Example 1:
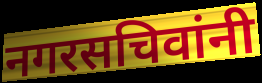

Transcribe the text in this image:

नगरसचिवांनी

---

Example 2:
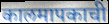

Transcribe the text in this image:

कालमापकाची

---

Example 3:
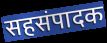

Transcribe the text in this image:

सहसंपादक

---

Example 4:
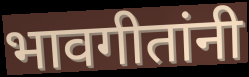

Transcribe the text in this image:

भावगीतांनी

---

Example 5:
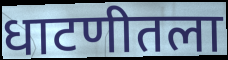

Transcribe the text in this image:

धाटणीतला